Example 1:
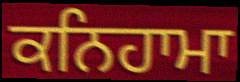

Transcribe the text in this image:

ਕਨਿਹਾਮਾ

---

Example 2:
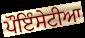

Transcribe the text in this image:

ਪੌਇੰਸੇਟੀਆ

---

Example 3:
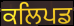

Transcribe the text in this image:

ਕਲਿਪਡ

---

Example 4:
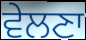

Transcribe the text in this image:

ਵੇਲਣਾ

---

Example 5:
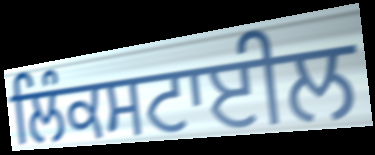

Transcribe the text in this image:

ਲਿੰਕਸਟਾਈਲ